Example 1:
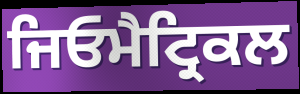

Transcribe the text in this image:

ਜਿਓਮੈਟ੍ਰਿਕਲ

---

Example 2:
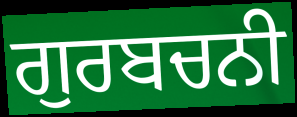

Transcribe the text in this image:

ਗੁਰਬਚਨੀ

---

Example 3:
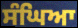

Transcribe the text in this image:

ਸੰਘਿਆ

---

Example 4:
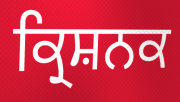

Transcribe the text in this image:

ਕ੍ਰਿਸ਼ਨਕ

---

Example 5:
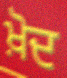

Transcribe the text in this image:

ਖ਼ੋਦ